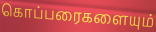
கொப்பரைகளையும்